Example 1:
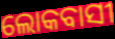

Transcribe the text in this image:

ଲୋକବାସୀ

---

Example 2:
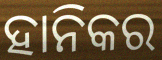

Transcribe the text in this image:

ହାନିକର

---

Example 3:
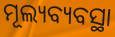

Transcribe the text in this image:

ମୂଲ୍ୟବ୍ୟବସ୍ଥା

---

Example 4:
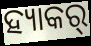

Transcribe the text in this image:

ହ୍ୟାକର୍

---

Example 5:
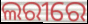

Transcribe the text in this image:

ଲରୀରେ